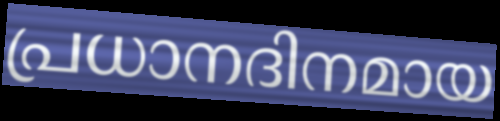
പ്രധാനദിനമായ